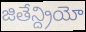
జితేన్ద్రియో